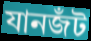
যানজঁট